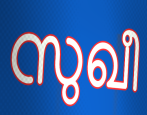
സുഖീ